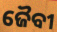
ଜୈବୀ